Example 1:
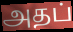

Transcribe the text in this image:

அதப்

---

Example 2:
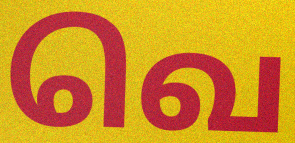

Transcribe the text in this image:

வெ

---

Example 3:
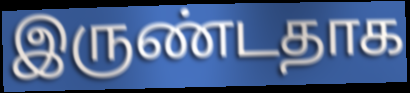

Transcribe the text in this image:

இருண்டதாக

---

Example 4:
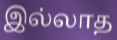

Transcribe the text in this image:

இல்லாத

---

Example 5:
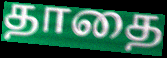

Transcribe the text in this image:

தாதை